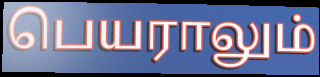
பெயராலும்